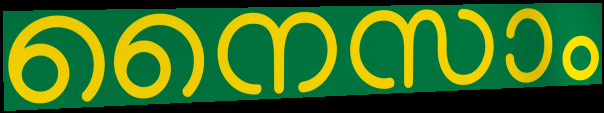
നൈസാം